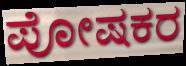
ಪೋಷಕರ